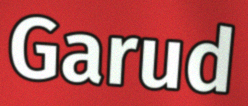
Garud